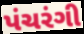
પંચરંગી